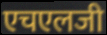
एचएलजी